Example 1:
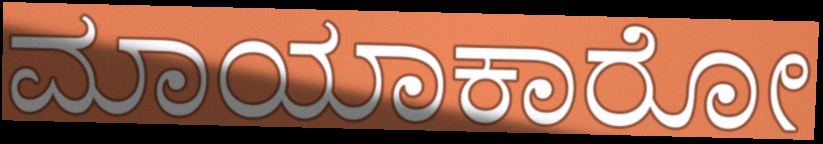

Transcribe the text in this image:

ಮಾಯಾಕಾರೋ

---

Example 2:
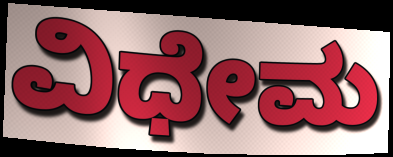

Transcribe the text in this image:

ವಿಧೇಮ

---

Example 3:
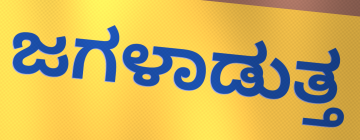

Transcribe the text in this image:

ಜಗಳಾಡುತ್ತ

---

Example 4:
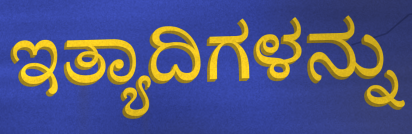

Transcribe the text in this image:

ಇತ್ಯಾದಿಗಳನ್ನು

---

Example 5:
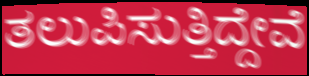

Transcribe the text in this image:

ತಲುಪಿಸುತ್ತಿದ್ದೇವೆ